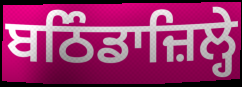
ਬਠਿੰਡਾਜ਼ਿਲ੍ਹੇ